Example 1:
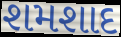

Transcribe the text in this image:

શમશાદ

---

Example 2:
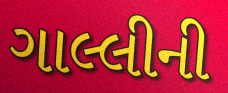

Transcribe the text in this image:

ગાલ્લીની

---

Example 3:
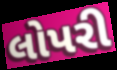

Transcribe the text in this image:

લોપરી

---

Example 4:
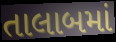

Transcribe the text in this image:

તાલાબમાં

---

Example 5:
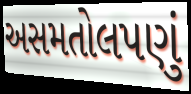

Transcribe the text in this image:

અસમતોલપણું